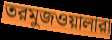
তরমুজওয়ালারা